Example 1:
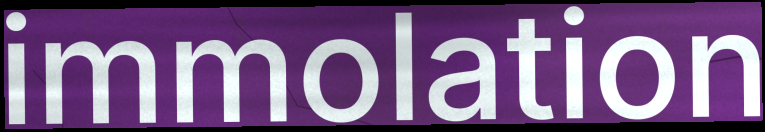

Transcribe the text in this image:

immolation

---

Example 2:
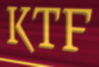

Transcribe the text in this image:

KTF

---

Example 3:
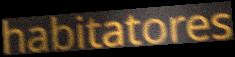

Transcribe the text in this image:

habitatores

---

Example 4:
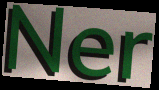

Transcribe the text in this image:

Ner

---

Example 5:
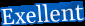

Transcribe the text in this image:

Exellent